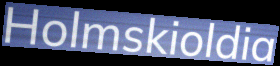
Holmskioldia